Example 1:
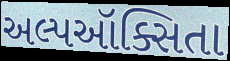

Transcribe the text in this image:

અલ્પઑક્સિતા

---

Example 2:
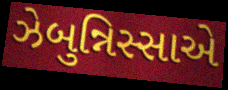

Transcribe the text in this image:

ઝેબુન્નિસ્સાએ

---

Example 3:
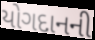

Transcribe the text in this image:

યોગદાનની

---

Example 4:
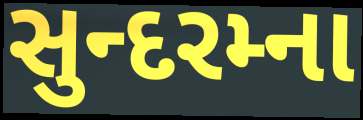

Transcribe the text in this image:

સુન્દરમ્ના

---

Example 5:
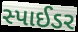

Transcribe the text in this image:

સ્પાઈડર